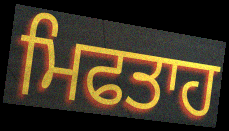
ਮਿਫਤਾਹ